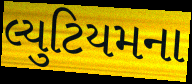
લ્યુટિયમના